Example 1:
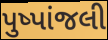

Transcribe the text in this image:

પુષ્પાંજલી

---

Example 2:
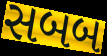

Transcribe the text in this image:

સબબ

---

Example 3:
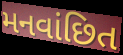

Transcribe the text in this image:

મનવાંછિત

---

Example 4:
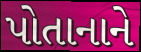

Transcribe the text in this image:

પોતાનાને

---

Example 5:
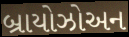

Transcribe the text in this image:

બ્રાયોઝોઅન